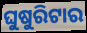
ଘୁଷୁରିଟାର